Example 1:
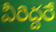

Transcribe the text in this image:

వీరిద్దరే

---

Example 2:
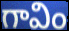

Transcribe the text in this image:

గావిం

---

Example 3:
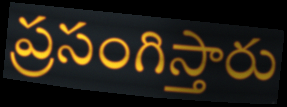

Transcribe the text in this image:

ప్రసంగిస్తారు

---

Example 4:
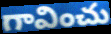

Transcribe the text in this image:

గావించు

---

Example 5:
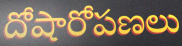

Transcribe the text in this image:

దోషారోపణలు